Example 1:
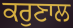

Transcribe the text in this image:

ਕਰੁਣਾਲ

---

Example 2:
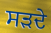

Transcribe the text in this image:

ਸੜਦੇ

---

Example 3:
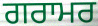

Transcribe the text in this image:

ਗਰਾਮਰ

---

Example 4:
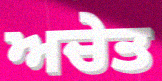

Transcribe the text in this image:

ਅਚੇਤ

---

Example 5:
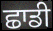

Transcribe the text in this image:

ਛਾਡੀ